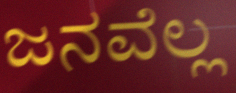
ಜನವೆಲ್ಲ